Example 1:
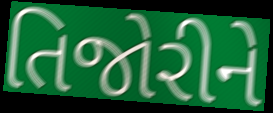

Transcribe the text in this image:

તિજોરીને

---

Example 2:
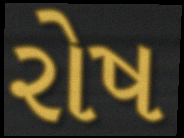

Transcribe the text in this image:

રોષ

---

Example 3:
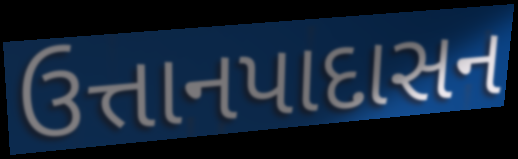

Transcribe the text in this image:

ઉત્તાનપાદાસન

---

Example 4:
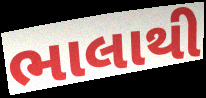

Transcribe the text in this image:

ભાલાથી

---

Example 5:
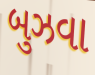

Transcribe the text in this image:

બુઝવા